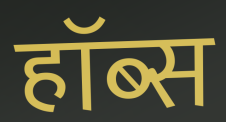
हॉब्स